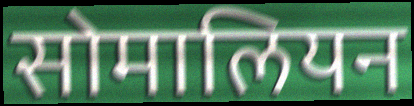
सोमालियन